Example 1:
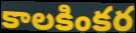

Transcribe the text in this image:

కాలకింకర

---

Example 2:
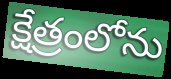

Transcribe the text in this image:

క్షేత్రంలోను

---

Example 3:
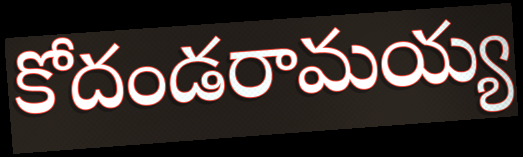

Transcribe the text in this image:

కోదండరామయ్య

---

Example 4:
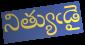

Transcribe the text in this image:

నిత్యుఁడై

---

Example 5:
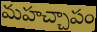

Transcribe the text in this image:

మహచ్చాపం